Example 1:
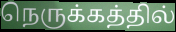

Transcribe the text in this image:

நெருக்கத்தில்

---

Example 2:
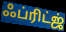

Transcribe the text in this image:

ஃப்ரிட்ஜ்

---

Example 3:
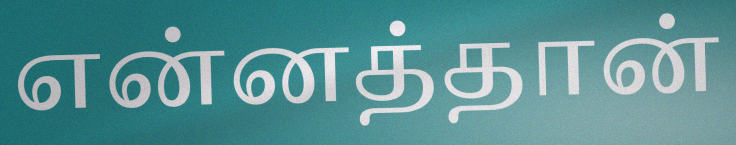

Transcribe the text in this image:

என்னத்தான்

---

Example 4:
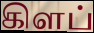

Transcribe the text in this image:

கிளப்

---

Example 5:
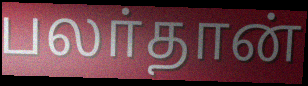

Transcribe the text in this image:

பலர்தான்